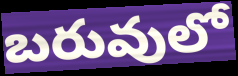
బరువులో